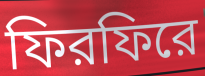
ফিরফিরে